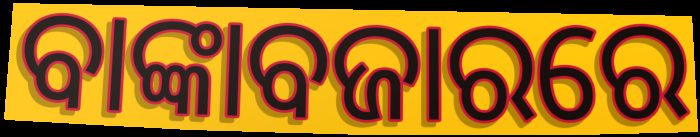
ବାଙ୍କାବଜାରରେ